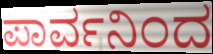
ಪಾರ್ವನಿಂದ